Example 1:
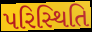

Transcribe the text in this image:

પરિસ્‍થિતિ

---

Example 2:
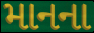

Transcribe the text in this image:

માનના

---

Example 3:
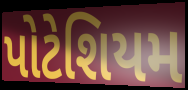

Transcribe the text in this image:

પોટેશિયમ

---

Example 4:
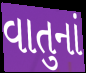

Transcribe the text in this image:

વાતુનાં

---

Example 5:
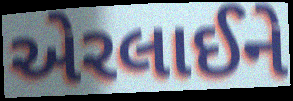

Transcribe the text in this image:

એરલાઈને